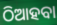
ଠିଆହବା